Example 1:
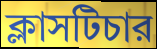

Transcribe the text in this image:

ক্লাসটিচার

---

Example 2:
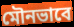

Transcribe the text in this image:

মৌনভাবে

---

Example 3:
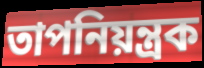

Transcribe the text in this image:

তাপনিয়ন্ত্রক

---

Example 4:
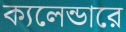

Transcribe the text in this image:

ক্যলেন্ডারে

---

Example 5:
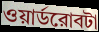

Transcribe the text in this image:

ওয়ার্ডরোবটা